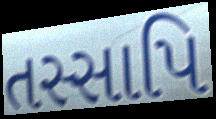
તસ્સાપિ